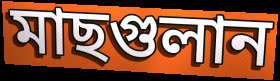
মাছগুলান